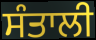
ਸੰਤਾਲੀ